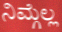
ನಿಮ್ಗೆಲ್ಲ